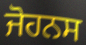
ਜੋਹਨਸ